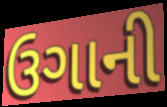
ઉગાની